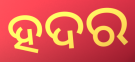
ହଦର